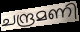
ചന്ദ്രമണി